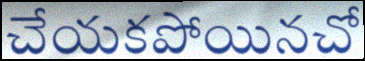
చేయకపోయినచో